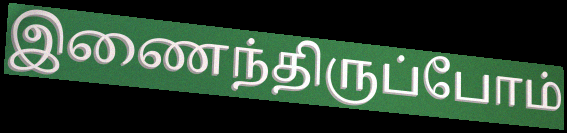
இணைந்திருப்போம்